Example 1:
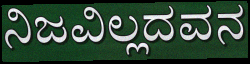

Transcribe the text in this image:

ನಿಜವಿಲ್ಲದವನ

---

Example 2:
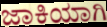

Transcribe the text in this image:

ಜಾಕಿಯಾಗಿ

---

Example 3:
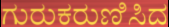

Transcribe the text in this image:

ಗುರುಕರುಣಿಸಿದ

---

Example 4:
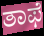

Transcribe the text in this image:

ತಾಫೆ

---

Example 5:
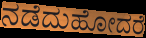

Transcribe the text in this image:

ನಡೆದುಹೋದರೆ